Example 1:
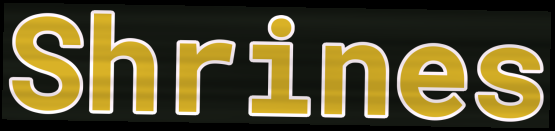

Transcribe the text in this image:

Shrines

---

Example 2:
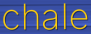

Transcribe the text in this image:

chale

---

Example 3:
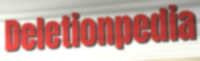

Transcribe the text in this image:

Deletionpedia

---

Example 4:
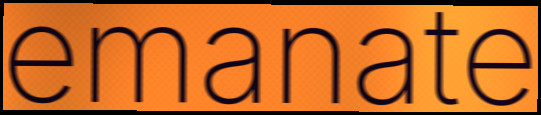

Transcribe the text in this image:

emanate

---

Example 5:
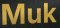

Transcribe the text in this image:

Muk